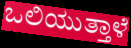
ಒಲಿಯುತ್ತಾಳೆ